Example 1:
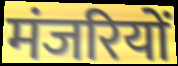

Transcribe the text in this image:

मंजरियों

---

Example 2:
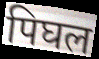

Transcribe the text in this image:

पिघल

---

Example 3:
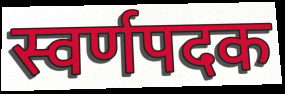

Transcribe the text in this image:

स्वर्णपदक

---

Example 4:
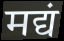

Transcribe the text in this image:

मद्यं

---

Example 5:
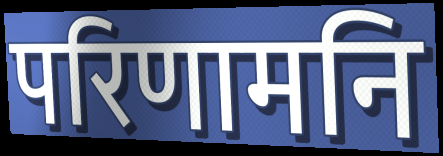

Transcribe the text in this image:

परिणामनि